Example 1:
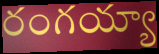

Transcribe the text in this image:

రంగయ్యా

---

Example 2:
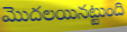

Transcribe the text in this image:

మొదలయినట్టుంది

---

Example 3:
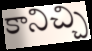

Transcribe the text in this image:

కానిచ్చి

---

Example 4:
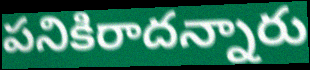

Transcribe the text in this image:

పనికిరాదన్నారు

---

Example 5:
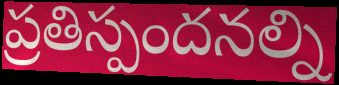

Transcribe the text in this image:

ప్రతిస్పందనల్ని